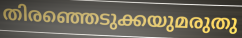
തിരഞ്ഞെടുക്കയുമരുതു